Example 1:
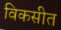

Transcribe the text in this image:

विकसीत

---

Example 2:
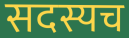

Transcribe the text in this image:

सदस्यच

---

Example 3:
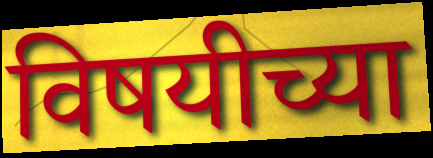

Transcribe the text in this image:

विषयीच्या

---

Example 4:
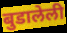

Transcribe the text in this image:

बुडालेली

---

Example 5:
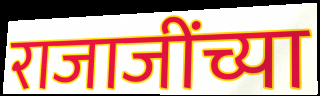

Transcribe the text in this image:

राजाजींच्या